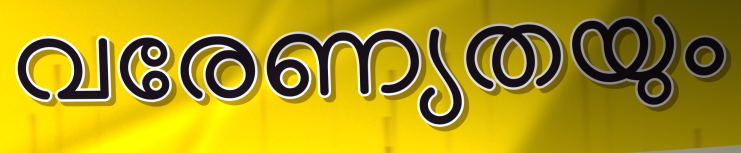
വരേണ്യതയും